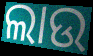
ଲାଉ